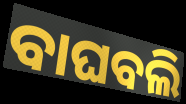
ବାଘବଲି